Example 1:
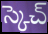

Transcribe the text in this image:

స్కెచ్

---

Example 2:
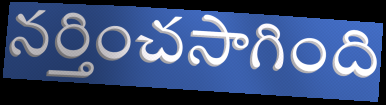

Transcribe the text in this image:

నర్తించసాగింది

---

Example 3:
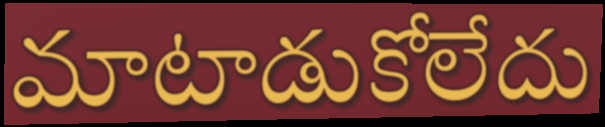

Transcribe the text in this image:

మాటాడుకోలేదు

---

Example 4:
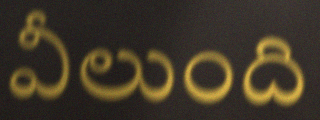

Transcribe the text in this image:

వీలుంది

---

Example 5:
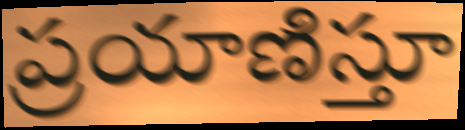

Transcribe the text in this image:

ప్రయాణిస్తూ